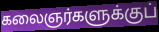
கலைஞர்களுக்குப்